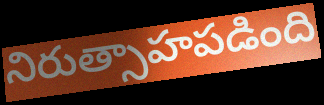
నిరుత్సాహపడింది